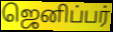
ஜெனிப்பர்